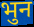
भुन